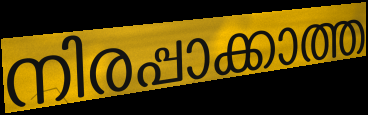
നിരപ്പാക്കാത്ത